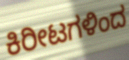
ಕಿರೀಟಗಳಿಂದ